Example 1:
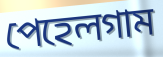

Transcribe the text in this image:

পেহেলগাম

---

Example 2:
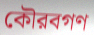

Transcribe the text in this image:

কৌরবগণ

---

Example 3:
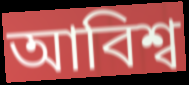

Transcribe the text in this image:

আবিশ্ব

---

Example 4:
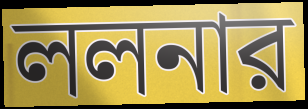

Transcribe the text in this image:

ললনার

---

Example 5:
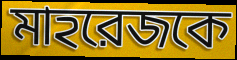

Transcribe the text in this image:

মাহরেজকে